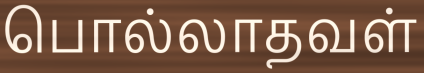
பொல்லாதவள்